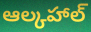
ఆల్కహాల్